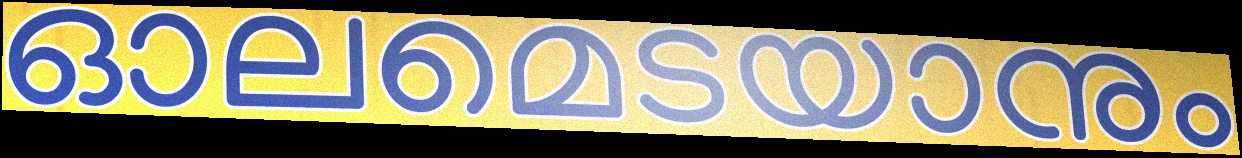
ഓലമെടയാനും